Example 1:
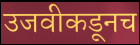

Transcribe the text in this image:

उजवीकडूनच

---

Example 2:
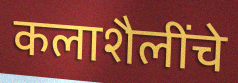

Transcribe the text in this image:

कलाशैलींचे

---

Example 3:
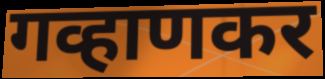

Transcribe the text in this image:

गव्हाणकर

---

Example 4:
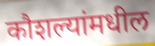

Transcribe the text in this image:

कौशल्यांमधील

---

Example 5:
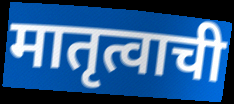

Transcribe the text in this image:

मातृत्वाची